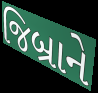
જિબ્રાને